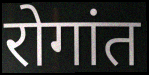
रोगांत